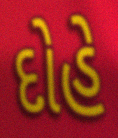
દોહે